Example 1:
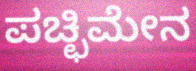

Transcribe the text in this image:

ಪಚ್ಛಿಮೇನ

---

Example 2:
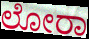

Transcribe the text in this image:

ಲೋರಾ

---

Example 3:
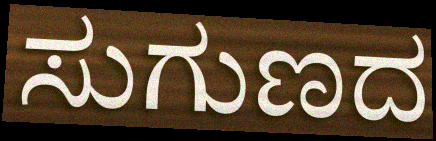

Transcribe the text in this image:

ಸುಗುಣದ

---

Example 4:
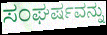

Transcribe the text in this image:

ಸಂಘರ್ಷವನ್ನು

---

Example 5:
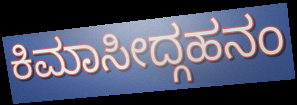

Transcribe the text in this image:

ಕಿಮಾಸೀದ್ಗಹನಂ